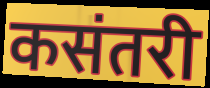
कसंतरी